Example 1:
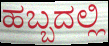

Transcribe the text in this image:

ಹಬ್ಬದಲ್ಲಿ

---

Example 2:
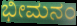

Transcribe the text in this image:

ಭೀಮನಂ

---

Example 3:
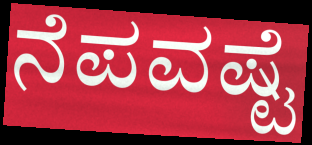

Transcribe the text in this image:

ನೆಪವಷ್ಟೆ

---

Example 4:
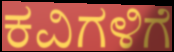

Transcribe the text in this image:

ಕವಿಗಳಿಗೆ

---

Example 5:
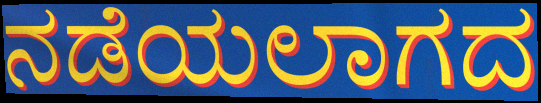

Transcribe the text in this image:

ನಡೆಯಲಾಗದ